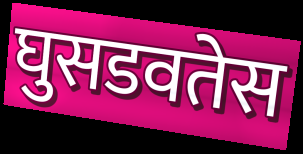
घुसडवतेस